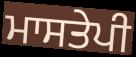
ਮਾਸਤੇਪੀ